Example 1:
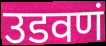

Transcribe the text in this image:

उडवणं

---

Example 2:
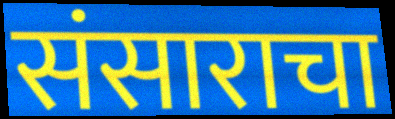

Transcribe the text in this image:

संसाराचा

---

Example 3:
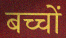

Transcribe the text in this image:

बच्चों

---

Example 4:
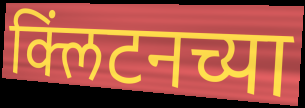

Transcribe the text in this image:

क्लिंटनच्या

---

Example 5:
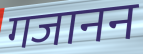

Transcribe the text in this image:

गजानन